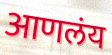
आणलंय